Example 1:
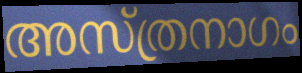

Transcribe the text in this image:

അസ്ത്രനാഗം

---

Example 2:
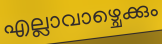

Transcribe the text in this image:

എല്ലാവാഴ്ചെക്കും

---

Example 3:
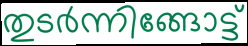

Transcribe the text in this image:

തുടർന്നിങ്ങോട്ട്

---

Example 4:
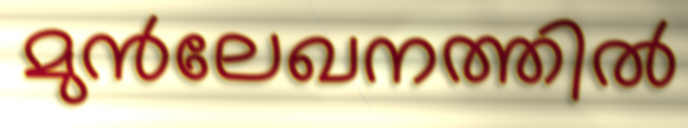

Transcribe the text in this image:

മുൻലേഖനത്തിൽ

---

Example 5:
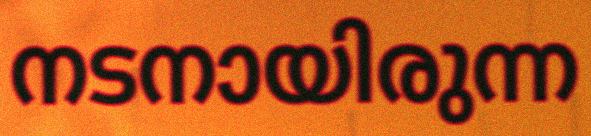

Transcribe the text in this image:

നടനായിരുന്ന